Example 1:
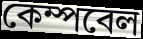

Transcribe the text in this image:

কেম্পবেল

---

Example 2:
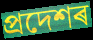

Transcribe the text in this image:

প্ৰদেশৰ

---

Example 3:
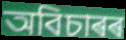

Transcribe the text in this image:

অবিচাৰৰ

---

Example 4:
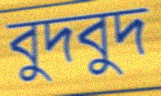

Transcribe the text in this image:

বুদবুদ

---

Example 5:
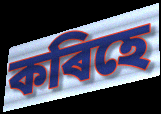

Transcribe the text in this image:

কৰিহে